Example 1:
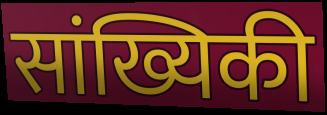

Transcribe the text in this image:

सांख्यिकी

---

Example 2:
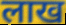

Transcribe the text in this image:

लाख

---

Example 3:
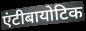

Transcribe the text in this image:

एंटीबायोटिक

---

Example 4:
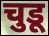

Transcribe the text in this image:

चुडू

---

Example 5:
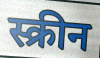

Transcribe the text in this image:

स्क्रीन